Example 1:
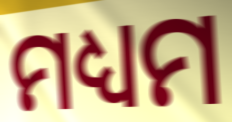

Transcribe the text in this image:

ମଧ୍ୟମ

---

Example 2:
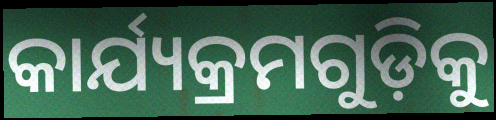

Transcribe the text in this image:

କାର୍ଯ୍ୟକ୍ରମଗୁଡ଼ିକୁ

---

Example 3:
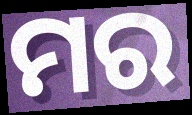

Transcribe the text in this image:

ମର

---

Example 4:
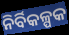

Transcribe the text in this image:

ନିର୍ବିକଳ୍ପକ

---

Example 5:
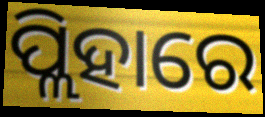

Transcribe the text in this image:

ପ୍ଲିହାରେ